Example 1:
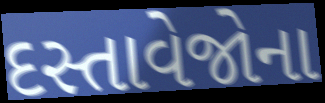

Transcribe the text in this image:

દસ્તાવેજોના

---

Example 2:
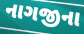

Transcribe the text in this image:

નાગજીના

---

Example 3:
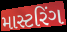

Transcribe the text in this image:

માસ્ટરિંગ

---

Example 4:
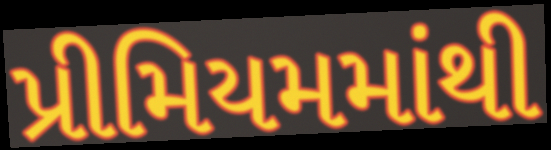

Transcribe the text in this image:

પ્રીમિયમમાંથી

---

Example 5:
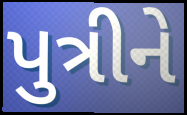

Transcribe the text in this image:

પુત્રીને